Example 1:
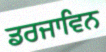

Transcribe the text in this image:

ਡਰਜਾਵਿਨ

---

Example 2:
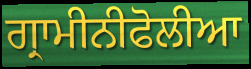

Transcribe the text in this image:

ਗ੍ਰਾਮੀਨੀਫੋਲੀਆ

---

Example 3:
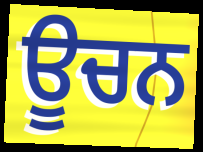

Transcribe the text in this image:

ਊਚਨ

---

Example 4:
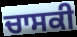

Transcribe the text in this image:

ਚਾਸਕੀ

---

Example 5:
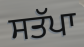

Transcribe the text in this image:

ਸਤੱਪਾ